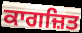
ਕਾਗਜ਼ਿਤ